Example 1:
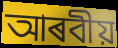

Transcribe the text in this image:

আৰবীয়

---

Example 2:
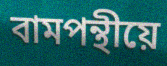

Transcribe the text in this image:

বামপন্থীয়ে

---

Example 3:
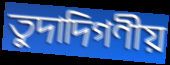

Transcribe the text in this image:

তুদাদিগণীয়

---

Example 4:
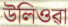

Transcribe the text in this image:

উলিওৱা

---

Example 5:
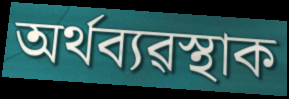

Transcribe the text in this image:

অৰ্থব্যৱস্থাক